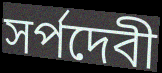
সর্পদেবী